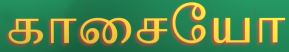
காசையோ